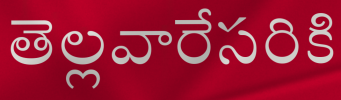
తెల్లవారేసరికి